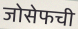
जोसेफची